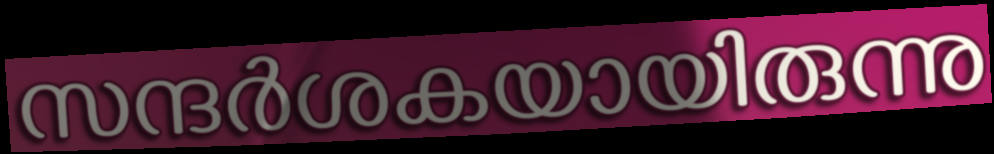
സന്ദർശകയായിരുന്നു